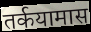
तर्कयामास